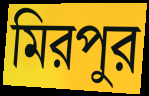
মিরপুর